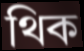
থিক